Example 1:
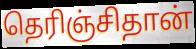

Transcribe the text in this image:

தெரிஞ்சிதான்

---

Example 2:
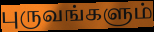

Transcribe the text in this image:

புருவங்களும்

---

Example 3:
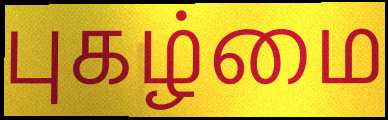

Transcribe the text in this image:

புகழ்மை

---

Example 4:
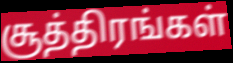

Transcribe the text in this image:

சூத்திரங்கள்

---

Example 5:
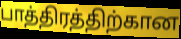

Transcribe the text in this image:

பாத்திரத்திற்கான